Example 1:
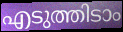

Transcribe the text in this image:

എടുത്തിടാം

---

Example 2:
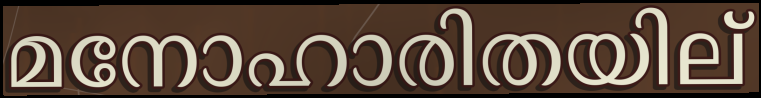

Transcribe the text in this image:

മനോഹാരിതയില്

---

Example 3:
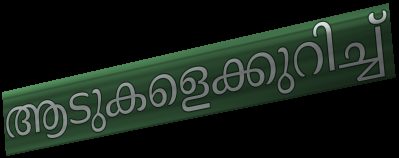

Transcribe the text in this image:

ആടുകളെക്കുറിച്ച്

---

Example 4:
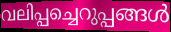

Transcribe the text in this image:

വലിപ്പച്ചെറുപ്പങ്ങൾ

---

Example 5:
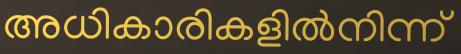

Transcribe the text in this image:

അധികാരികളിൽനിന്ന്